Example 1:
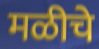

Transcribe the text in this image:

मळीचे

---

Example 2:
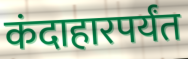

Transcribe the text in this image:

कंदाहारपर्यंत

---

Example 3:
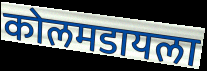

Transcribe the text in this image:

कोलमडायला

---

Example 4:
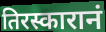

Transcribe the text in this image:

तिरस्कारानं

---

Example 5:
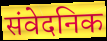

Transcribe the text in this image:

संवेदनिक